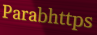
Parabhttps